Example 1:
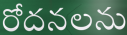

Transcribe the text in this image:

రోదనలను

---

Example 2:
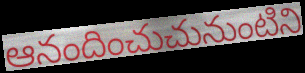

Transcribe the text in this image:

ఆనందించుచునుంటిని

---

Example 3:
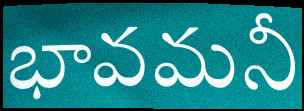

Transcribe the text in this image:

భావమనీ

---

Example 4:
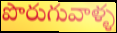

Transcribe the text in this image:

పొరుగువాళ్ళ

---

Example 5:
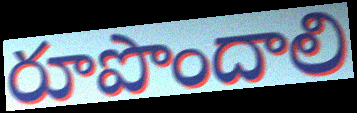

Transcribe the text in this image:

రూపొందాలి